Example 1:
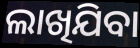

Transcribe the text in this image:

ଲାଖିଯିବା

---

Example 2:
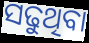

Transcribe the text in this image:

ସଢୁଥିବା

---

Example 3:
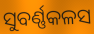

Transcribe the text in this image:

ସୁବର୍ଣ୍ଣକଳସ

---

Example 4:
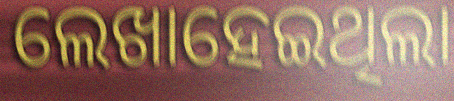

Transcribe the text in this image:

ଲେଖାହେଇଥିଲା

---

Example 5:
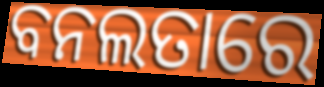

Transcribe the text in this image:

ବନଲତାରେ